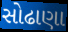
સોઢાણા